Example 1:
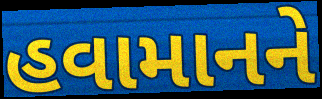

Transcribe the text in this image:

હવામાનને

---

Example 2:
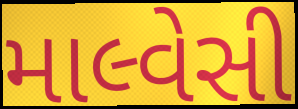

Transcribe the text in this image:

માલ્વેસી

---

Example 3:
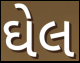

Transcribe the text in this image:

ઘેલ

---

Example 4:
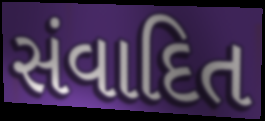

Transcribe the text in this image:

સંવાદિત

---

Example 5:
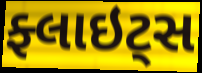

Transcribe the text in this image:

ફ્લાઇટ્સ